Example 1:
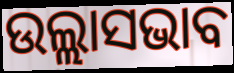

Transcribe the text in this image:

ଉଲ୍ଲାସଭାବ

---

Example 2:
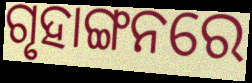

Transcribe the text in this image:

ଗୃହାଙ୍ଗନରେ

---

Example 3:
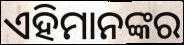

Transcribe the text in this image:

ଏହିମାନଙ୍କର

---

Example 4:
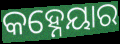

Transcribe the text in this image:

କହ୍ନେୟାର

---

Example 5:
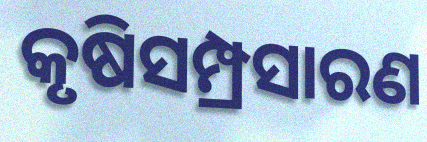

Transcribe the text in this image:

କୃଷିସମ୍ପ୍ରସାରଣ